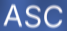
ASC